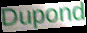
Dupond